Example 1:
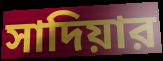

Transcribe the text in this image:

সাদিয়ার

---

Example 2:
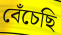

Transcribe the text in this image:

বেঁচেছি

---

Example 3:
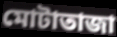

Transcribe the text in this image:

মোটাতাজা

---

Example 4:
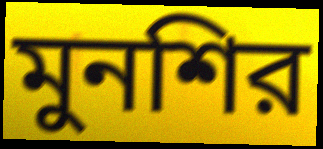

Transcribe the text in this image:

মুনশির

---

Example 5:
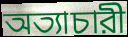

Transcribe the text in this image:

অত্যাচারী